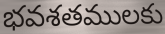
భవశతములకు